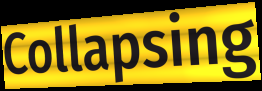
Collapsing